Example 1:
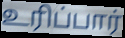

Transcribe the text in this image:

உரிப்பார்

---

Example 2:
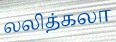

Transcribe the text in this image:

லலித்கலா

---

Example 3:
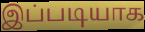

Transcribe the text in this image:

இப்படியாக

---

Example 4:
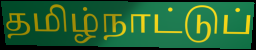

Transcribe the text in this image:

தமிழ்நாட்டுப்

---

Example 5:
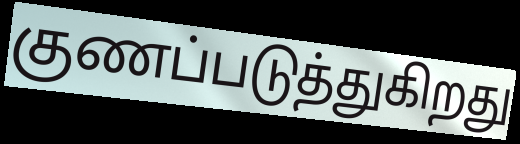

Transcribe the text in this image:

குணப்படுத்துகிறது